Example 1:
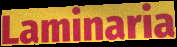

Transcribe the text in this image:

Laminaria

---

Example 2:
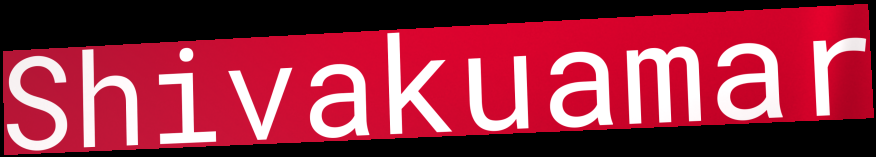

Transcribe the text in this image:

Shivakuamar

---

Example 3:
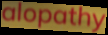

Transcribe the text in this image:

alopathy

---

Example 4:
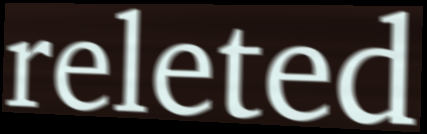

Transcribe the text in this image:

releted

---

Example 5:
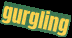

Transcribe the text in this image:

gurgling